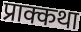
प्राक्कथा